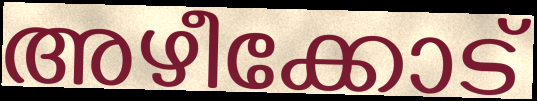
അഴീക്കോട്